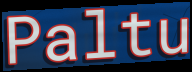
Paltu